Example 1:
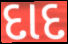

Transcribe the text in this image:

દાદ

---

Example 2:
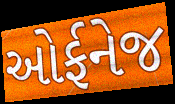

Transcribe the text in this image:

ઓર્ફનેજ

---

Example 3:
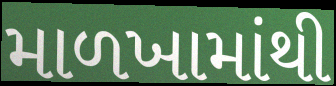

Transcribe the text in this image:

માળખામાંથી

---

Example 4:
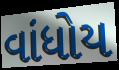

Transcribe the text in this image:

વાંધોય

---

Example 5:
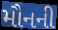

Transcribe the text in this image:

મૌનની